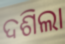
ଦଶିଲା